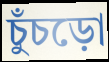
চুঁচড়ো